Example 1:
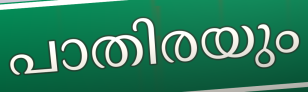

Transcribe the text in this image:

പാതിരയും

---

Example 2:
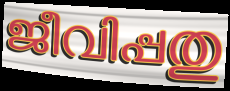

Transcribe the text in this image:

ജീവിപ്പതു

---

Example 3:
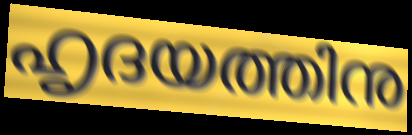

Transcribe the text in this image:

ഹൃദയത്തിനു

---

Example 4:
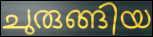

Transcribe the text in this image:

ചുരുങ്ങിയ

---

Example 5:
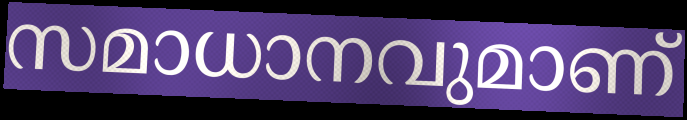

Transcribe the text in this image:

സമാധാനവുമാണ്